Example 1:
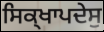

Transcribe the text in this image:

ਸਿਕ੍ਖਾਪਦੇਸੁ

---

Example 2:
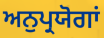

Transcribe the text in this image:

ਅਨੁਪ੍ਰਯੋਗਾਂ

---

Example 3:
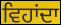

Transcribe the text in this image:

ਵਿਹਾਂਦਾ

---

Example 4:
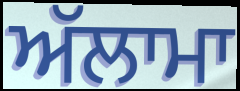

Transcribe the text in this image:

ਅੱਲਾਮਾ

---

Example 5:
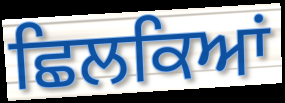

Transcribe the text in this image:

ਛਿਲਕਿਆਂ